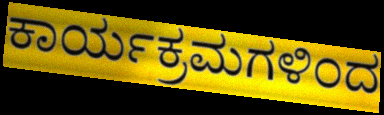
ಕಾರ್ಯಕ್ರಮಗಳಿಂದ